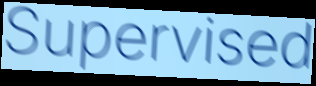
Supervised